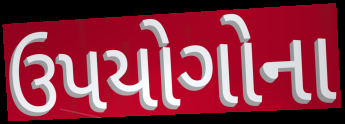
ઉપયોગોના